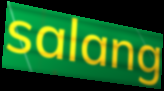
salang